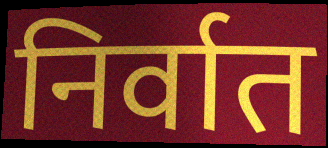
निर्वात